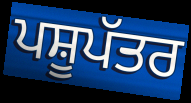
ਪਸ਼ੂਪੱਤਰ